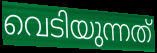
വെടിയുന്നത്